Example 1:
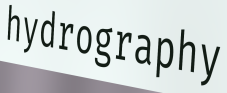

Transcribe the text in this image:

hydrography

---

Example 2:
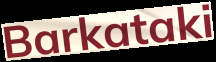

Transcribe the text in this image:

Barkataki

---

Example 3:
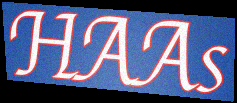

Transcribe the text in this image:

HAAs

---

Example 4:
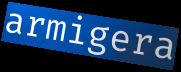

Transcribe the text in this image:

armigera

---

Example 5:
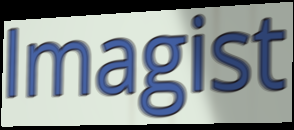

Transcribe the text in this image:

Imagist